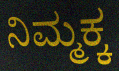
ನಿಮ್ಮಕ್ಕ